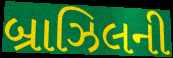
બ્રાઝિલની